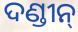
ଦଣ୍ଡୀନ୍